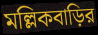
মল্লিকবাড়ির